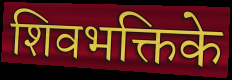
शिवभक्तिके